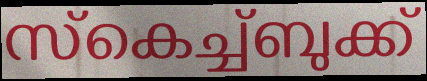
സ്‌കെച്ച്ബുക്ക്